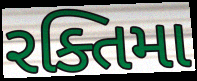
રક્તિમા